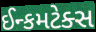
ઈન્કમટેક્સ